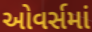
ઓવર્સમાં